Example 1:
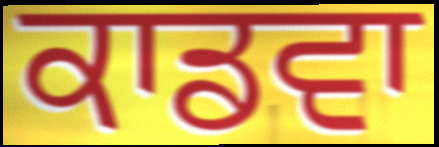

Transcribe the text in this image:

ਕਾਡਵਾ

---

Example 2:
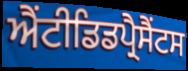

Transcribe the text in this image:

ਐਂਟੀਡਿਡਪ੍ਰੈਸੈਂਟਸ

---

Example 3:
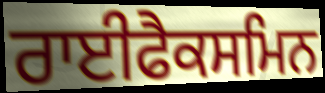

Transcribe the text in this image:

ਰਾਈਫੈਕਸਮਿਨ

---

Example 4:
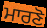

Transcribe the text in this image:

ਮਾਰਣੋ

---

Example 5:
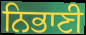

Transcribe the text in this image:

ਨਿਭਾਣੀ